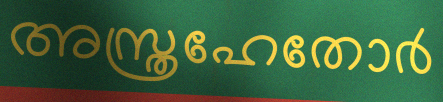
അസ്ത്രഹേതോർ